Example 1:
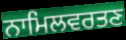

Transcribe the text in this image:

ਨਾਮਿਲਵਰਤਣ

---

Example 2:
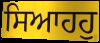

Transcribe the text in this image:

ਸਿਆਹਹੁ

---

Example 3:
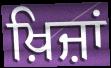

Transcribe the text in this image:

ਖ਼ਿਜ਼ਾਂ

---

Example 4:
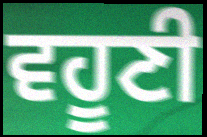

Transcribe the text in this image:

ਵਹੂਣੀ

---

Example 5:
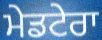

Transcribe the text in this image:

ਮੇਡਟੇਰਾ